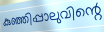
കുഞ്ഞിപ്പാലുവിന്റെ